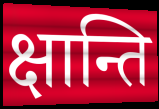
क्षान्ति